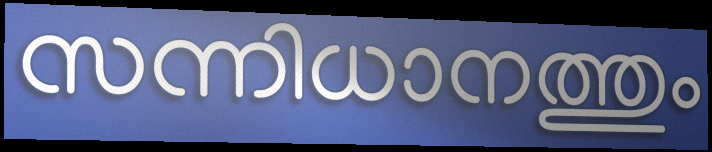
സന്നിധാനത്തും